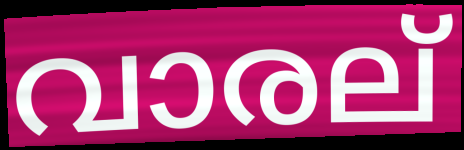
വാരല്